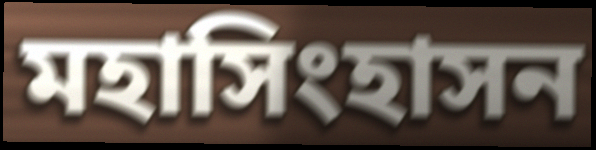
মহাসিংহাসন